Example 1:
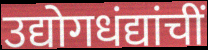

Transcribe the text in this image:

उद्योगधंद्यांचीं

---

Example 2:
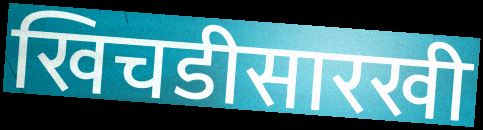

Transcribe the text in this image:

खिचडीसारखी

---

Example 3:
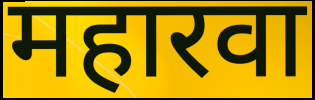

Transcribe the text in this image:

महारवा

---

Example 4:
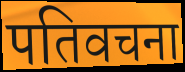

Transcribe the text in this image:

पतिवचना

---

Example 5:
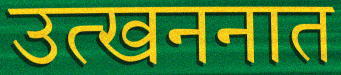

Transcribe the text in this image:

उत्खननात